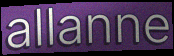
allanne